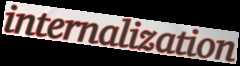
internalization